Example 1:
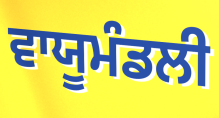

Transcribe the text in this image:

ਵਾਯੂਮੰਡਲੀ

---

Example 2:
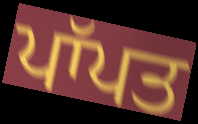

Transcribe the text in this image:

ਪਾੱਪਤ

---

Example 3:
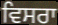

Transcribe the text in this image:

ਵਿਸਰਾ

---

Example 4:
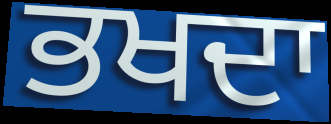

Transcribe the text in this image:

ਭਖਦਾ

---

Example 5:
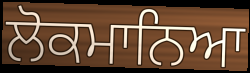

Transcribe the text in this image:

ਲੋਕਮਾਨਿਆ